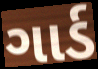
ગાર્ડ